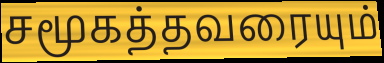
சமூகத்தவரையும்